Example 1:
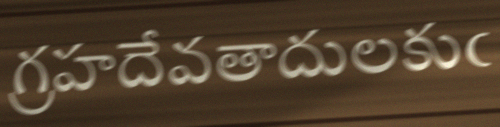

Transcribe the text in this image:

గ్రహదేవతాదులకుఁ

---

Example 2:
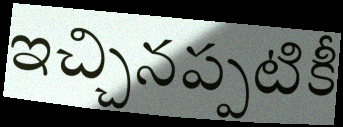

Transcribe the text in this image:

ఇచ్చినప్పటికీ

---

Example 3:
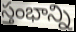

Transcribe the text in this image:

స్తంభాన్ని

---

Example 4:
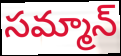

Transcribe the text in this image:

సమ్మాన్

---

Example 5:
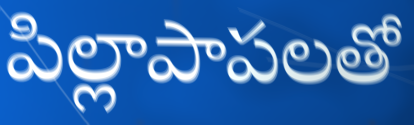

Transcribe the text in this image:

పిల్లాపాపలతో